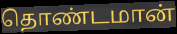
தொண்டமான்